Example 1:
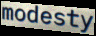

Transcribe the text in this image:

modesty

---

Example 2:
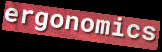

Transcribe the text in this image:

ergonomics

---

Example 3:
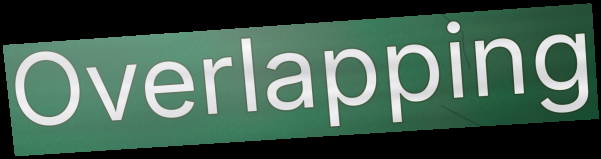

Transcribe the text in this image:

Overlapping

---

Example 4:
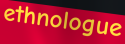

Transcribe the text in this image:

ethnologue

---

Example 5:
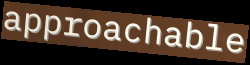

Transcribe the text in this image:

approachable